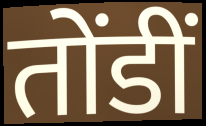
तोंडीं